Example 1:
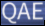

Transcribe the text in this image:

QAE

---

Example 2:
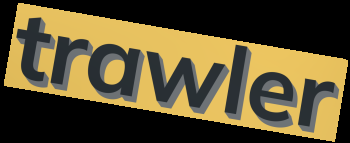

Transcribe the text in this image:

trawler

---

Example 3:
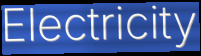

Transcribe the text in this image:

Electricity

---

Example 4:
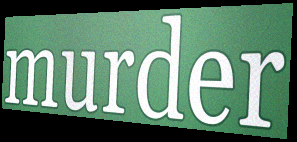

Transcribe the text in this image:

murder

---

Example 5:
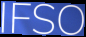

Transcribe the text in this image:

IFSO